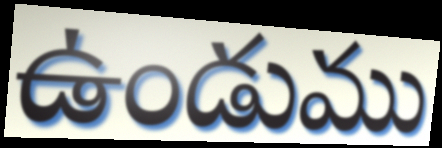
ఉండుము